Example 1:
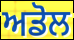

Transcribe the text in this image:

ਅਡੋਲ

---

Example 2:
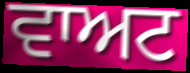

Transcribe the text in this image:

ਵਾਅਟ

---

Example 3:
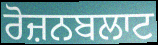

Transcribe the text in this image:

ਰੋਜ਼ਨਬਲਾਟ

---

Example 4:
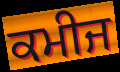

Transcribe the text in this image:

ਕਮੀਜ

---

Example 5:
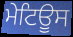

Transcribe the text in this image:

ਮੇਟਿਊਸ